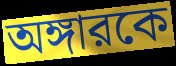
অঙ্গারকে